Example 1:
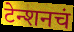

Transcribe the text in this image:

टेन्शनचं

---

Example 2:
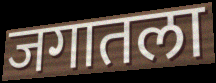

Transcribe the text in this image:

जगातला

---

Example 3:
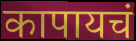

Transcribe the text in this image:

कापायचं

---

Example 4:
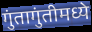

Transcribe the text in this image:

गुंतागुंतीमध्ये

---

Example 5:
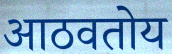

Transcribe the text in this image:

आठवतोय